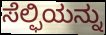
ಸೆಲ್ಫಿಯನ್ನು